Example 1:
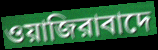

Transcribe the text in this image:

ওয়াজিরাবাদে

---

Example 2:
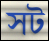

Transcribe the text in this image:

সট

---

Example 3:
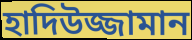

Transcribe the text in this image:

হাদিউজ্জামান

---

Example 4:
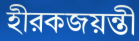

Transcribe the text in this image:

হীরকজয়ন্তী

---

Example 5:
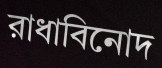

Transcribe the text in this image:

রাধাবিনোদ